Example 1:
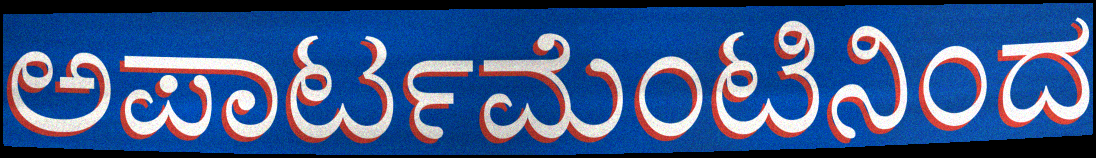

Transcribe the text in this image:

ಅಪಾರ್ಟಮೆಂಟಿನಿಂದ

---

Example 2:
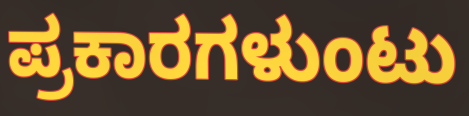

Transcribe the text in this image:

ಪ್ರಕಾರಗಳುಂಟು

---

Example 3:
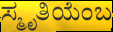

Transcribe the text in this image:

ಸ್ಮೃತಿಯೆಂಬ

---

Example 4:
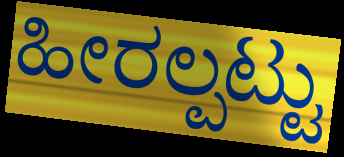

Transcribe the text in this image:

ಹೀರಲ್ಪಟ್ಟು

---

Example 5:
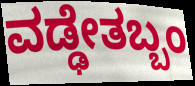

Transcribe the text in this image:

ವಡ್ಢೇತಬ್ಬಂ